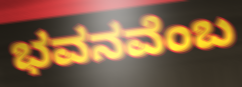
ಭವನವೆಂಬ